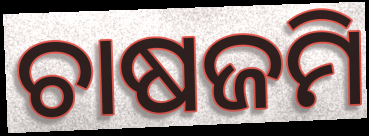
ଚାଷଜମି